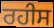
ਰਹੀਸ